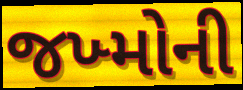
જખ્મોની